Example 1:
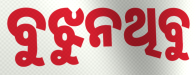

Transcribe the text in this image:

ବୁଝୁନଥିବୁ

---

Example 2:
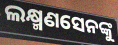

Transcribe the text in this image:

ଲକ୍ଷ୍ମଣସେନଙ୍କୁ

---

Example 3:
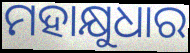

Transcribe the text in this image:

ମହାକ୍ଷୁଧାର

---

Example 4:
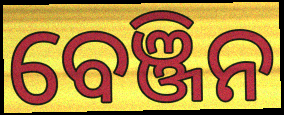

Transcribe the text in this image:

ବେଞ୍ଜିନ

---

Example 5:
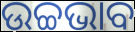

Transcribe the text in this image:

ଉଚ୍ଚଭାବ